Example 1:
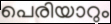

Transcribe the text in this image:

പെരിയാറും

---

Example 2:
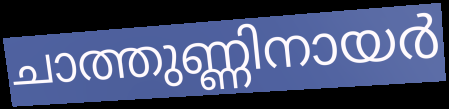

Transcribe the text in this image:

ചാത്തുണ്ണിനായർ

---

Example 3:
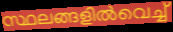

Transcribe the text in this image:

സ്ഥലങ്ങളിൽവെച്ച്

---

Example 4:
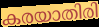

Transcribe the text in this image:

കരയാതിരി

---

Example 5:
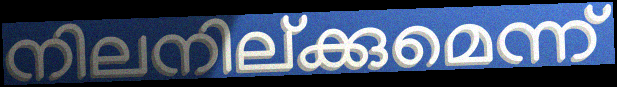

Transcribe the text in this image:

നിലനില്ക്കുമെന്ന്